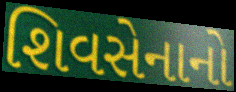
શિવસેનાનો